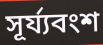
সূর্য্যবংশ